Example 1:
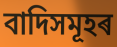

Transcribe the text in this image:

বাদিসমূহৰ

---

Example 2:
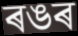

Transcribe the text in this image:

ৰঙৰ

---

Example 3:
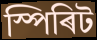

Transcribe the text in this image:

স্পিৰিট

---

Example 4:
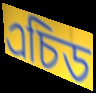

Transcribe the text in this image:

এচিড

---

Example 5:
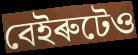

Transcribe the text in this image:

বেইৰুটেও